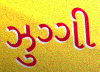
ઝુગ્ગી